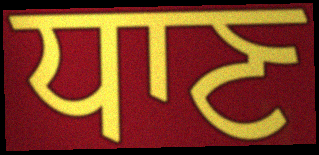
ਧਾਣ